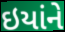
ઇયાંને